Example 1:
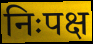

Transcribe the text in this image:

निःपक्ष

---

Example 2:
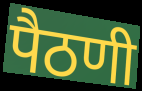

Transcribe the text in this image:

पैठणी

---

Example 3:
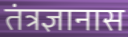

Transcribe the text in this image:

तंत्रज्ञानास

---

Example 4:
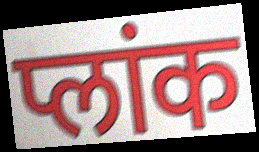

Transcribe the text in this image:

प्लांक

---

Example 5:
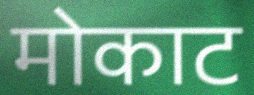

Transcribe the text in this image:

मोकाट